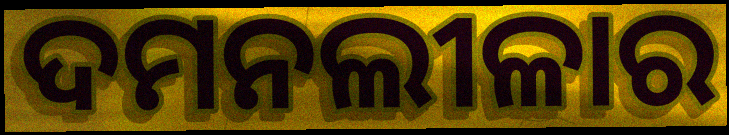
ଦମନଲୀଳାର